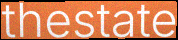
thestate